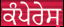
ਕੰਪੇਰੇਸ